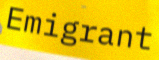
Emigrant